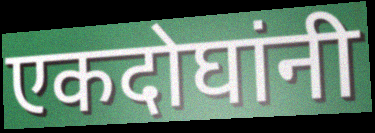
एकदोघांनी